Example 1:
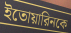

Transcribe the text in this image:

ইতোয়ারিনকে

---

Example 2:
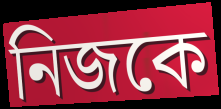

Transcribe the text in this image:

নিজকে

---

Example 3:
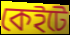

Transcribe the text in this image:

কেইটে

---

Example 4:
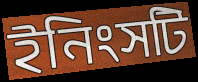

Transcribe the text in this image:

ইনিংসটি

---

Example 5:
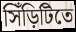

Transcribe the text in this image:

সিঁড়িটিতে